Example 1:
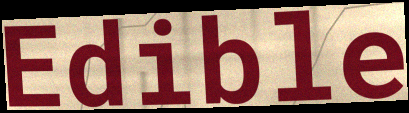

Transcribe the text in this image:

Edible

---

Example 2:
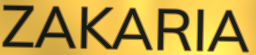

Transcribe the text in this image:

ZAKARIA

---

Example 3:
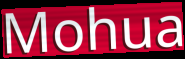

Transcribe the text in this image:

Mohua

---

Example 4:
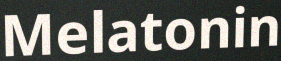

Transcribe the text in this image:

Melatonin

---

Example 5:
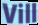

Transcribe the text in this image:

Vill